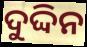
ଦୁଦ୍ଦିନ